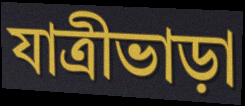
যাত্রীভাড়া